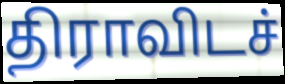
திராவிடச்